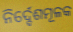
ନିର୍ଦ୍ଦେଶମୂଳକ